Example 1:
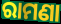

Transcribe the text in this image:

ରାମଣା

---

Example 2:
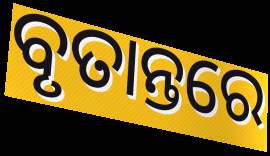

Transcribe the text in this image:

ବୃତାନ୍ତରେ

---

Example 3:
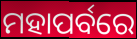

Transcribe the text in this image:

ମହାପର୍ବରେ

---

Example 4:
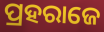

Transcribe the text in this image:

ପ୍ରହରାଜେ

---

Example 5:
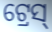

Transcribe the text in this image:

ଟ୍ରେସ୍